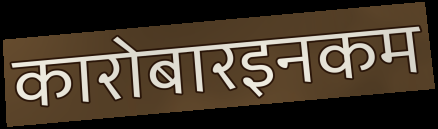
कारोबारइनकम